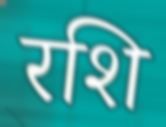
रशि